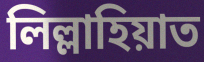
লিল্লাহিয়াত